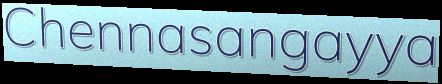
Chennasangayya